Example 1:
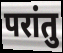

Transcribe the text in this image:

परांतु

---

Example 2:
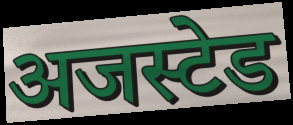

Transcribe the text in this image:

अजस्टेड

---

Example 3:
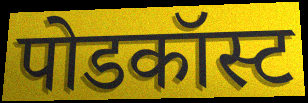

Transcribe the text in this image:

पोडकॉस्ट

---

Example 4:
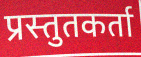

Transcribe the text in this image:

प्रस्तुतकर्ता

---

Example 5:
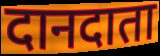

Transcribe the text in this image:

दानदाता